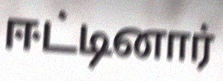
ஈட்டினார்